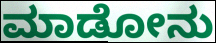
ಮಾಡೋನು